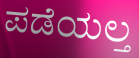
ಪಡೆಯಲ್ತ